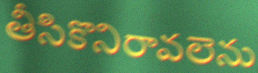
తీసికొనిరావలెను